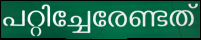
പറ്റിച്ചേരേണ്ടത്